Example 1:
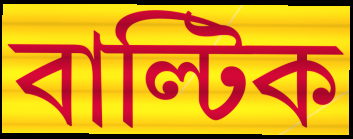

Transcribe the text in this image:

বাল্টিক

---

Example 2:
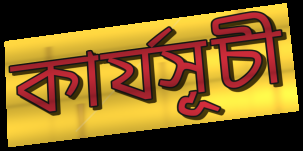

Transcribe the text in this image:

কাৰ্যসূচী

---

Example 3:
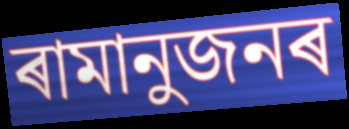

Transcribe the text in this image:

ৰামানুজনৰ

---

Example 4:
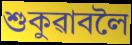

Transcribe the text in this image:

শুকুৱাবলৈ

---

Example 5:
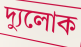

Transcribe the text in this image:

দ্যুলোক